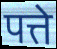
पत्ते